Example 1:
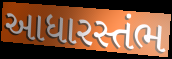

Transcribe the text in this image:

આધારસ્તંભ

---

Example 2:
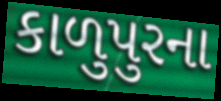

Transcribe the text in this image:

કાળુપુરના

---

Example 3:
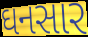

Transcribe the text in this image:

ઘનસાર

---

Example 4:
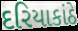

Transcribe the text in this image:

દરિયાકાંઠે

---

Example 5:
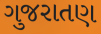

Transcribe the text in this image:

ગુજરાતણ